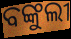
ବଙ୍କୁଲୀ